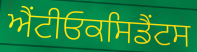
ਐਂਟੀਓਕਸਿਡੈਂਟਸ